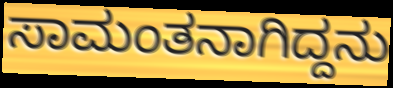
ಸಾಮಂತನಾಗಿದ್ದನು